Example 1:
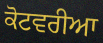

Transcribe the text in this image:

ਕੋਟਵਰੀਆ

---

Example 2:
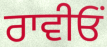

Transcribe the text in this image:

ਰਾਵੀਓਂ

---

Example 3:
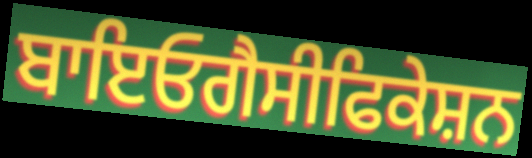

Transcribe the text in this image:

ਬਾਇਓਗੈਸੀਫਿਕੇਸ਼ਨ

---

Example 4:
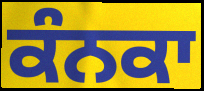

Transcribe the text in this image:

ਕੰਨਕਾ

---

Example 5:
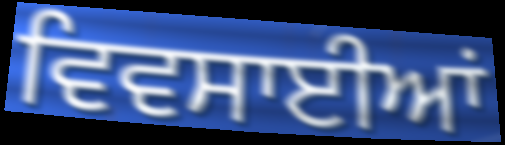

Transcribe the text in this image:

ਵਿਵਸਾਈਆਂ